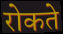
रोकते